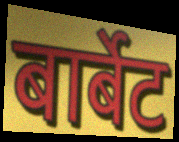
बार्बेट